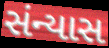
સંન્યાસ